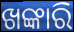
ଖଙ୍କାରି